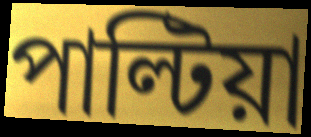
পাল্টিয়া